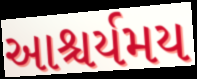
આશ્ચર્યમય